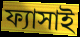
ফ্যাসাই